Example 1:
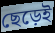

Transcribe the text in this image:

ছেড়েই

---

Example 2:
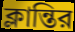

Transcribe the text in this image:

ক্লান্তির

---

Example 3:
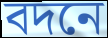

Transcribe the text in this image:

বদনে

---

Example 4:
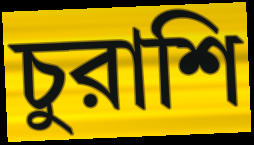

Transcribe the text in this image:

চুরাশি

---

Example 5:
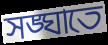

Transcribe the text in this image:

সঙ্ঘাতে